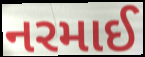
નરમાઈ